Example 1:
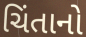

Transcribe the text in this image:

ચિંતાનો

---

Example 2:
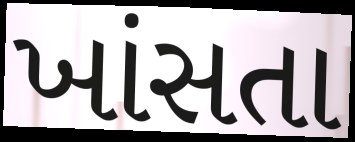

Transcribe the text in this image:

ખાંસતા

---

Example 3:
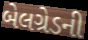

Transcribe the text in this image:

બેલગ્રેડની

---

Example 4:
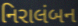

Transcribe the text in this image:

નિરાલંબન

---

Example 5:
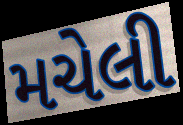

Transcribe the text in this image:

મચેલી